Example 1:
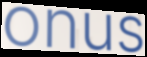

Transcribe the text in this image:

onus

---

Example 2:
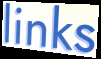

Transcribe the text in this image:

links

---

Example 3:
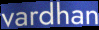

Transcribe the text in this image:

vardhan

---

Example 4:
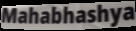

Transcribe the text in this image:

Mahabhashya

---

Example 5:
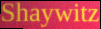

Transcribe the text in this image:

Shaywitz